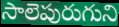
సాలెపురుగుని